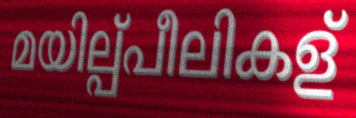
മയില്പ്പീലികള്